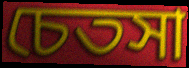
চেতসা